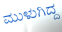
ಮುಳುಗಿದ್ದ